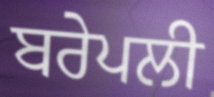
ਬਰੇਪਲੀ